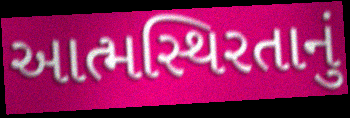
આત્મસ્થિરતાનું